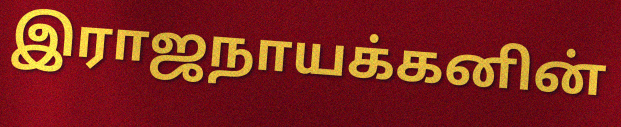
இராஜநாயக்கனின்